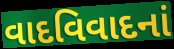
વાદવિવાદનાં